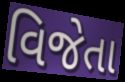
વિજેતા